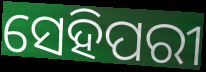
ସେହିପରୀ